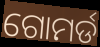
ଗୋମର୍ଡ